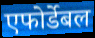
एफोर्डेबल